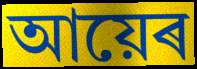
আয়েৰ